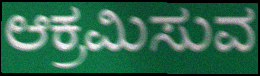
ಆಕ್ರಮಿಸುವ